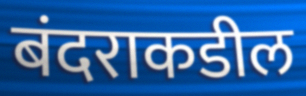
बंदराकडील